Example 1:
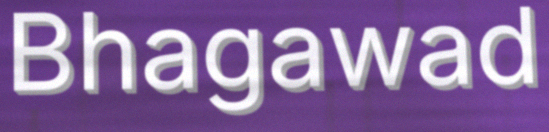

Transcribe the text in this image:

Bhagawad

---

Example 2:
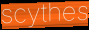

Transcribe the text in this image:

scythes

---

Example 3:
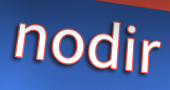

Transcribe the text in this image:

nodir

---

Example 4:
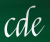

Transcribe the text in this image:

cde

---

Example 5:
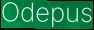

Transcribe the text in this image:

Odepus